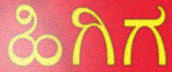
ಹಿಗಿಗ